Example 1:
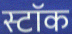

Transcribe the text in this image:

स्‍टॉक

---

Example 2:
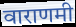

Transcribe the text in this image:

वाराणमी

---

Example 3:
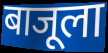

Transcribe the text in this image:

बाजूला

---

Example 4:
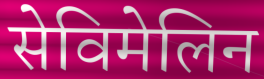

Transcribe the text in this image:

सेविमेलिन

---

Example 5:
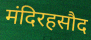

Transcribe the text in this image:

मंदिरहसौद